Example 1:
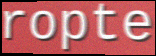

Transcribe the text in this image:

ropte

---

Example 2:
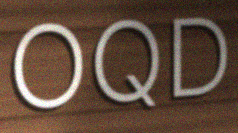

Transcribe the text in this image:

OQD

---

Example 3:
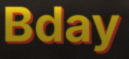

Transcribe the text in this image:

Bday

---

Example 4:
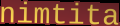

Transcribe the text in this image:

nimtita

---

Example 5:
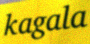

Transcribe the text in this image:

kagala